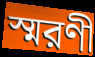
স্মরণী